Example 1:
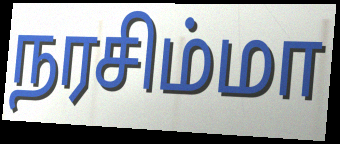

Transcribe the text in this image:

நரசிம்மா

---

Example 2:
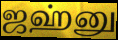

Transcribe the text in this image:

ஜஹ்னு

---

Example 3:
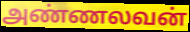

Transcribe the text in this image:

அண்ணலவன்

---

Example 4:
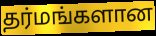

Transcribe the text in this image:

தர்மங்களான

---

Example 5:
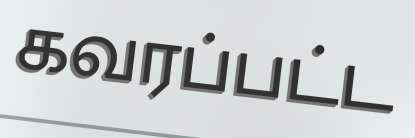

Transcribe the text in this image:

கவரப்பட்ட